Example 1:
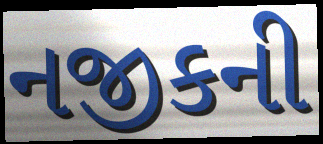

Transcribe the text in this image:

નજીકની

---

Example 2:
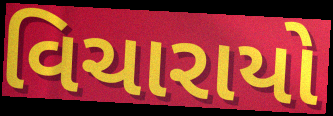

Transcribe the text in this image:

વિચારાયો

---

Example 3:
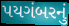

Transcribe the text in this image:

પયગંબરનું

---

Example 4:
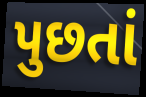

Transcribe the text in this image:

પુછતાં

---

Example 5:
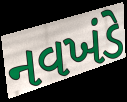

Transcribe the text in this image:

નવખંડે